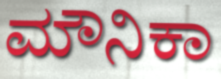
ಮೌನಿಕಾ